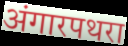
अंगारपथरा